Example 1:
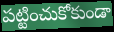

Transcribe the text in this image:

పట్టించుకోకుండా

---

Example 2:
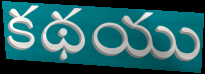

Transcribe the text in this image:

కథయు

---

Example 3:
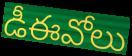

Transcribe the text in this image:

డీఈవోలు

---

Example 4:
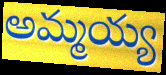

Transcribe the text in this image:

అమ్మయ్య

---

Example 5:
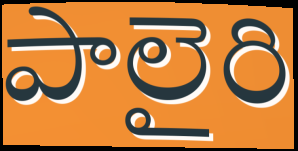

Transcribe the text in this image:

పాలైరి